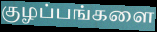
குழப்பங்களை